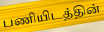
பணியிடத்தின்